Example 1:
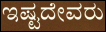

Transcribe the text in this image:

ಇಷ್ಟದೇವರು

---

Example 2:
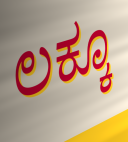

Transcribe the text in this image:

ಲಕ್ಕೂ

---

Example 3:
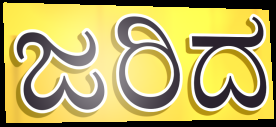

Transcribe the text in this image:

ಜರಿದ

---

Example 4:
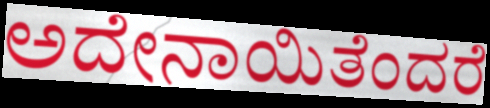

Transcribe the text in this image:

ಅದೇನಾಯಿತೆಂದರೆ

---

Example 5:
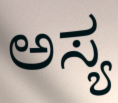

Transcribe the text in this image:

ಅಸ್ಯ